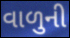
વાળુની